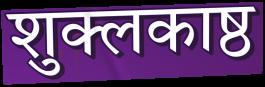
शुक्लकाष्ठ